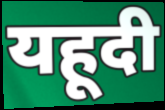
यहूदी